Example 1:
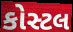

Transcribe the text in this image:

કોસ્ટલ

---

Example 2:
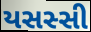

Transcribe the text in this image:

યસસ્સી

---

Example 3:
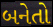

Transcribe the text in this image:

બનેતો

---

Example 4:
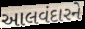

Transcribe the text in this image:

આલવંદારને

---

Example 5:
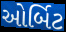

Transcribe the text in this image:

ઓર્બિટ